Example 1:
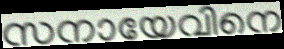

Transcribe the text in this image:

സനായേവിനെ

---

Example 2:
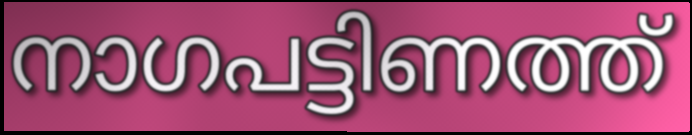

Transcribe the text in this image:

നാഗപട്ടിണത്ത്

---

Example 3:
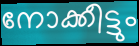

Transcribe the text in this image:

നോക്കീട്ടും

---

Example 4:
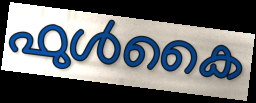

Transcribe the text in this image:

ഫുൾകൈ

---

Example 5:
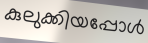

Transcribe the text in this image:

കുലുക്കിയപ്പോൾ